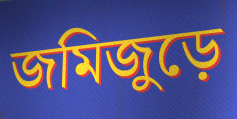
জমিজুড়ে